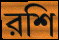
রশি